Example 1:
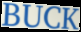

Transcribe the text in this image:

BUCK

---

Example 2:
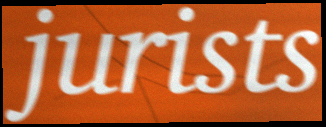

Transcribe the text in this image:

jurists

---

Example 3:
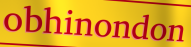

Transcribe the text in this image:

obhinondon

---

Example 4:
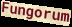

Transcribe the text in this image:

Fungorum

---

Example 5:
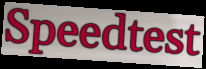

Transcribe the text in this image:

Speedtest